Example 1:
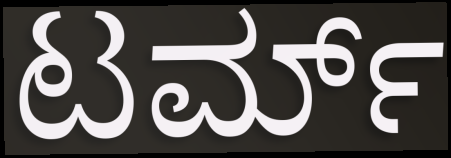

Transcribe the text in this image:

ಟರ್ಮ್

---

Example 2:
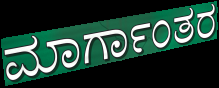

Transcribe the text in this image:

ಮಾರ್ಗಾಂತರ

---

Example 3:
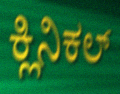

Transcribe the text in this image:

ಕ್ಲಿನಿಕಲ್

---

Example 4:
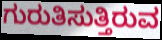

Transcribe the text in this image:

ಗುರುತಿಸುತ್ತಿರುವ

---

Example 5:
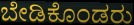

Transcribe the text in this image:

ಬೇಡಿಕೊಂಡರು